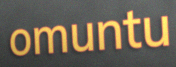
omuntu